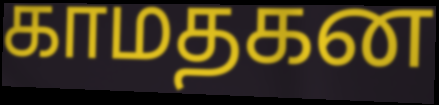
காமதகன